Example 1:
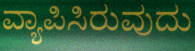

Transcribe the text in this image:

ವ್ಯಾಪಿಸಿರುವುದು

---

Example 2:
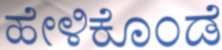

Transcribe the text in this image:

ಹೇಳಿಕೊಂಡೆ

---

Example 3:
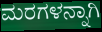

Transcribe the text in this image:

ಮರಗಳನ್ನಾಗಿ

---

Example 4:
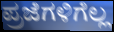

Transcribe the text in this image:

ಪ್ರಜೆಗಳಿಗೆಲ್ಲ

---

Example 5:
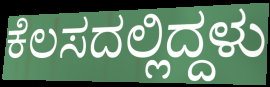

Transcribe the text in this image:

ಕೆಲಸದಲ್ಲಿದ್ದಳು